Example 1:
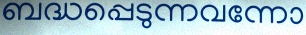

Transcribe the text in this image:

ബദ്ധപ്പെടുന്നവന്നോ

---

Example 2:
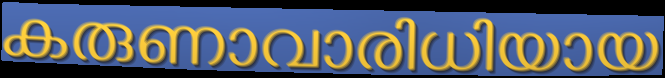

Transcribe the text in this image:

കരുണാവാരിധിയായ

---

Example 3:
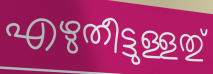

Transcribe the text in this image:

എഴുതീട്ടുള്ളതു്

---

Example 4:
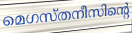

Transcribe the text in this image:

മെഗസ്തനീസിന്റെ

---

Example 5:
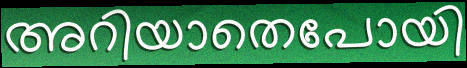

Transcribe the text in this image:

അറിയാതെപോയി